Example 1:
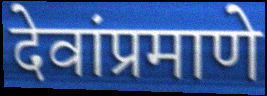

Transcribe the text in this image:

देवांप्रमाणे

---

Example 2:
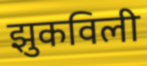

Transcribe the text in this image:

झुकविली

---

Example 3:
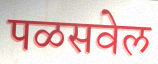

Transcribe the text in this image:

पळसवेल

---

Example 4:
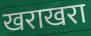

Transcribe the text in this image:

खराखरा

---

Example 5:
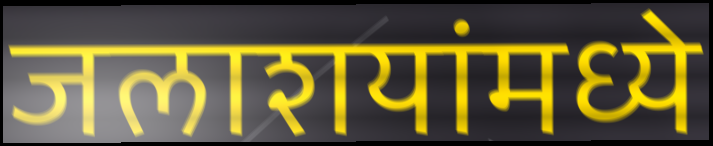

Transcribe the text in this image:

जलाशयांमध्ये